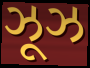
ઝૂઝ